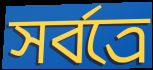
সৰ্বত্ৰে